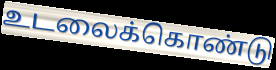
உடலைக்கொண்டு